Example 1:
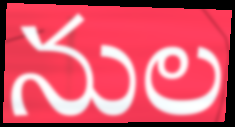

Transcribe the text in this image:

నుల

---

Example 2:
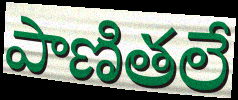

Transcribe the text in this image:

పాణితలే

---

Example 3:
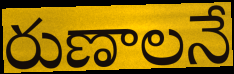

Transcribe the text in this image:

రుణాలనే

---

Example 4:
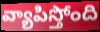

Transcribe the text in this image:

వ్యాపిస్తోంది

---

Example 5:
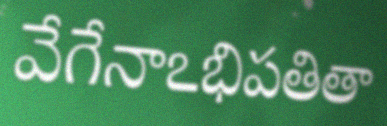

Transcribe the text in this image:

వేగేనాఽభిపతితా